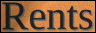
Rents